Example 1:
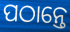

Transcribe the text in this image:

ପଠାନ୍ତେ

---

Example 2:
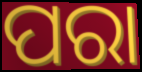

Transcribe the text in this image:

ପରା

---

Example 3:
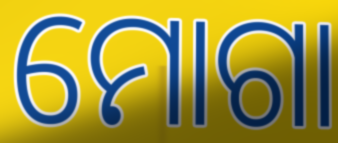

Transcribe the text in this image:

ମୋଗା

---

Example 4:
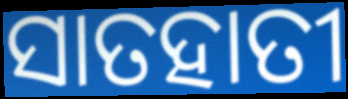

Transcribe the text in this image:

ସାତହାତୀ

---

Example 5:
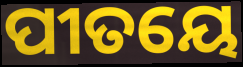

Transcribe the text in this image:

ପୀତୟେ